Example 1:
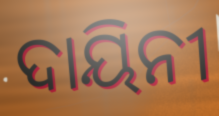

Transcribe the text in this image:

ଦାୟିନୀ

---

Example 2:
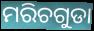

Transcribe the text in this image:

ମରିଚଗୁଡା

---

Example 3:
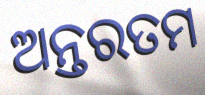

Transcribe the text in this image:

ଅନ୍ତରତମ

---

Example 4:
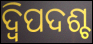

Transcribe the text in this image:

ଦ୍ବିପଦଶ୍ଚ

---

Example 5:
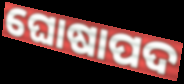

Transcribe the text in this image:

ଘୋଷାପଦ